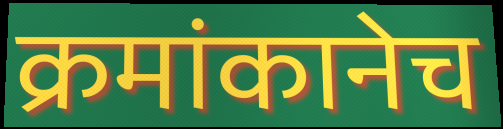
क्रमांकानेच